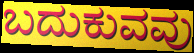
ಬದುಕುವವು